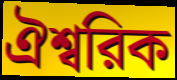
ঐশ্বরিক